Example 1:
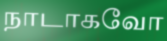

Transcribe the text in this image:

நாடாகவோ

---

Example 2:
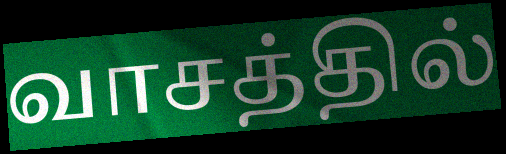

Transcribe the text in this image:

வாசத்தில்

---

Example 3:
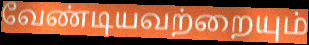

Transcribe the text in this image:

வேண்டியவற்றையும்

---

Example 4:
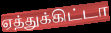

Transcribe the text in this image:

ஏத்துக்கிட்டா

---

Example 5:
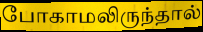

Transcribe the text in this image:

போகாமலிருந்தால்